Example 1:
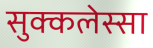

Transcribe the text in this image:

सुक्कलेस्सा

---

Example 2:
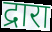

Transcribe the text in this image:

द्रारा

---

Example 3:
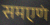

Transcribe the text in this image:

समएणं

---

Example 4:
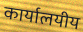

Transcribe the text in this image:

कार्यालयीय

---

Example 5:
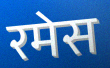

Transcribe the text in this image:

रमेस